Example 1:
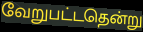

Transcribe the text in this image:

வேறுபட்டதென்று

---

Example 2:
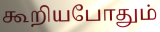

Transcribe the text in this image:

கூறியபோதும்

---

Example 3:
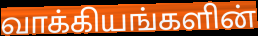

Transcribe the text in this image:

வாக்கியங்களின்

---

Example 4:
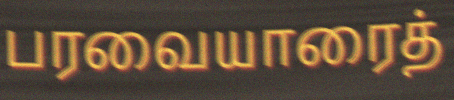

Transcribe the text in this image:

பரவையாரைத்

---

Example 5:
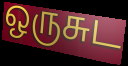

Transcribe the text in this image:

ஒருசுட